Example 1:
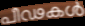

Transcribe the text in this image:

പീഢകൾ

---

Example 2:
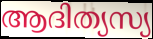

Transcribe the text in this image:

ആദിത്യസ്യ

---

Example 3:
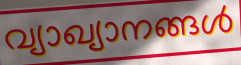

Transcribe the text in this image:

വ്യാഖ്യാനങ്ങൾ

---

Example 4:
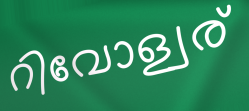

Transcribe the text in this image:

റിവോള്വര്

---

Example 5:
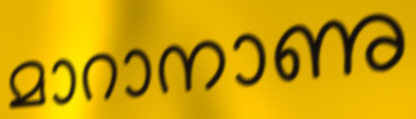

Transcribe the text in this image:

മാറാനാണു